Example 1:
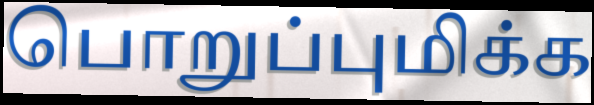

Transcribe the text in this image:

பொறுப்புமிக்க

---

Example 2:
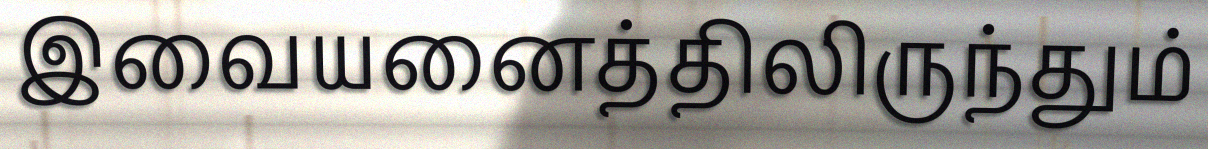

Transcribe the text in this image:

இவையனைத்திலிருந்தும்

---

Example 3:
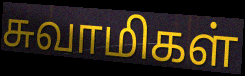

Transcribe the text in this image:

சுவாமிகள்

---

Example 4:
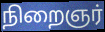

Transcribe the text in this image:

நிறைஞர்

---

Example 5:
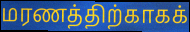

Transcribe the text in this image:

மரணத்திற்காகக்